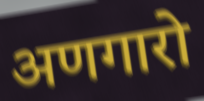
अणगारो